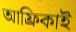
আফ্ৰিকাই